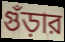
গুঁড়ার